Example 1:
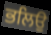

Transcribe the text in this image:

ਭਲਿਉ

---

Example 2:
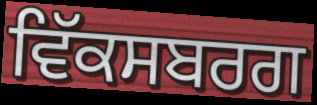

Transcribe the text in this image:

ਵਿੱਕਸਬਰਗ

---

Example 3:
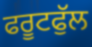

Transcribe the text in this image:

ਫਰੂਟਫੁੱਲ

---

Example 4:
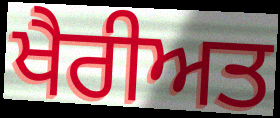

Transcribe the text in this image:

ਖੈਰੀਅਤ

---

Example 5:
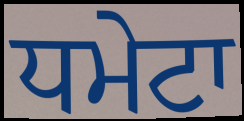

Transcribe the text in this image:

ਧਮੇਟਾ